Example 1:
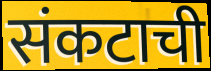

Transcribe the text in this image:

संकटाची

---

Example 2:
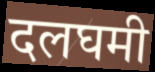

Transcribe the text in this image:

दलघमी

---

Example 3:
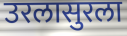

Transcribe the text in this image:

उरलासुरला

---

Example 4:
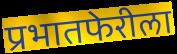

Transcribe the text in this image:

प्रभातफेरीला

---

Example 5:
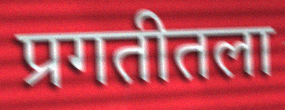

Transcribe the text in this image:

प्रगतीतला